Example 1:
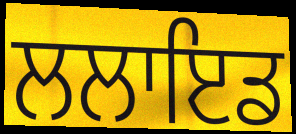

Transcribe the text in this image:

ਲਲਾਇਡ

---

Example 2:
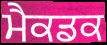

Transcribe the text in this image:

ਮੈਕਡਕ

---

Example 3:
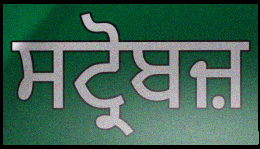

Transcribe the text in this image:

ਸਟ੍ਰੋਬਜ਼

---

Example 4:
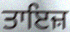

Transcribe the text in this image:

ਤਾਇਜ਼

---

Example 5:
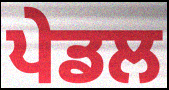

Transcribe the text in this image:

ਪੇਡਲ